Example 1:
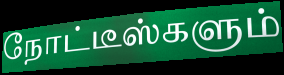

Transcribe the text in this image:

நோட்டீஸ்களும்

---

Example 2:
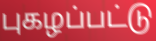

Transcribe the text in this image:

புகழப்பட்டு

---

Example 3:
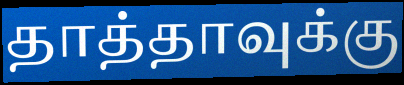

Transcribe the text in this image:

தாத்தாவுக்கு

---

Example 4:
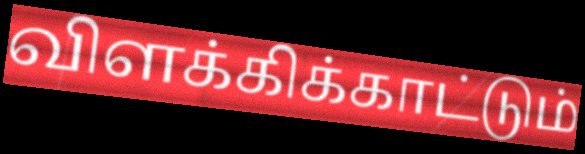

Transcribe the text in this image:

விளக்கிக்காட்டும்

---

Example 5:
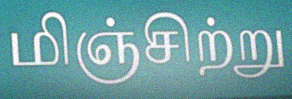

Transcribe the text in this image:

மிஞ்சிற்று